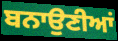
ਬਨਾਉਣੀਆਂ